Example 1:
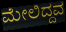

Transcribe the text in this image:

ಮೇಲಿದ್ದವ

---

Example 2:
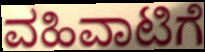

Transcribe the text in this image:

ವಹಿವಾಟಿಗೆ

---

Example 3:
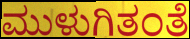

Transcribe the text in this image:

ಮುಳುಗಿತಂತೆ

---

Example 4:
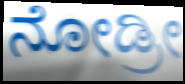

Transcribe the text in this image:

ನೋಡ್ರೀ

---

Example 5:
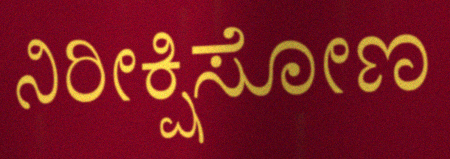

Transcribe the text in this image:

ನಿರೀಕ್ಷಿಸೋಣ